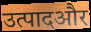
उत्पादऔर